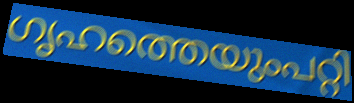
ഗൃഹത്തെയുംപറ്റി